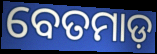
ବେତମାଡ଼